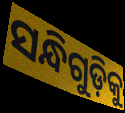
ସନ୍ଧିଗୁଡ଼ିକୁ